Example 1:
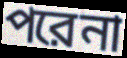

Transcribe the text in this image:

পরেনা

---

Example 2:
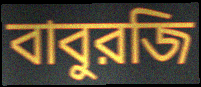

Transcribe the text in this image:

বাবুরজি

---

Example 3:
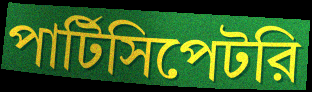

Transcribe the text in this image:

পার্টিসিপেটরি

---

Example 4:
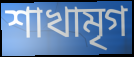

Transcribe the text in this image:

শাখামৃগ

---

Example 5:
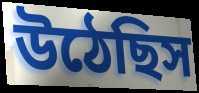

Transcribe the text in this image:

উঠেছিস